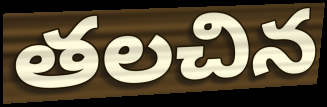
తలచిన